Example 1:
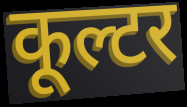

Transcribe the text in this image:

कूल्टर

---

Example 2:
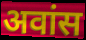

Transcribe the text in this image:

अवांस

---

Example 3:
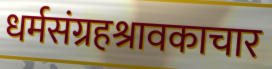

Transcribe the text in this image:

धर्मसंग्रहश्रावकाचार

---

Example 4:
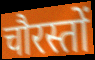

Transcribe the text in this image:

चौरस्तों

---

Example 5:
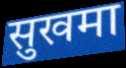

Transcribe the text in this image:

सुखमा